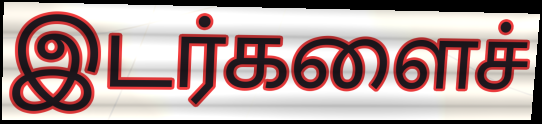
இடர்களைச்